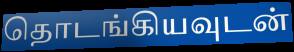
தொடங்கியவுடன்